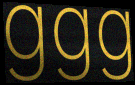
ggg